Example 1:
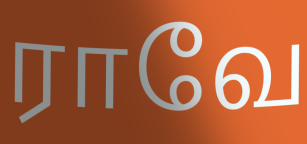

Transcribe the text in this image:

ராவே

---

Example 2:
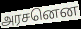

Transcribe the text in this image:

அரசனென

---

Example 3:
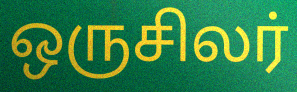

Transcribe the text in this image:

ஒருசிலர்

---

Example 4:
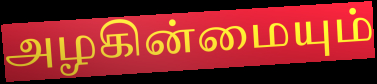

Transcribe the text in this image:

அழகின்மையும்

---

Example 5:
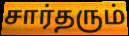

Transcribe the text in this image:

சார்தரும்